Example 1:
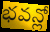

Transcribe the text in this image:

భవన్లో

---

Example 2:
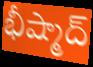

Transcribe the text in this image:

భీష్మాద్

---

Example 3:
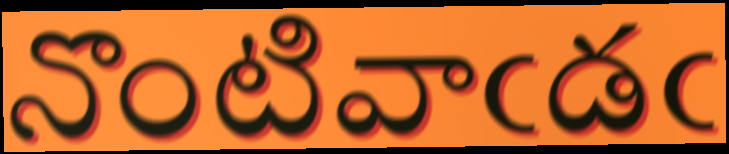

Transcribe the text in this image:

నొంటివాఁడఁ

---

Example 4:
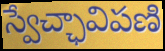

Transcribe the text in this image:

స్వేచ్ఛావిపణి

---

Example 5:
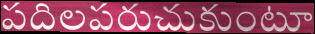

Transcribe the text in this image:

పదిలపరుచుకుంటూ